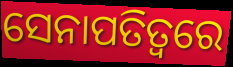
ସେନାପତିତ୍ୱରେ